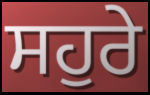
ਸਹੁਰੇ